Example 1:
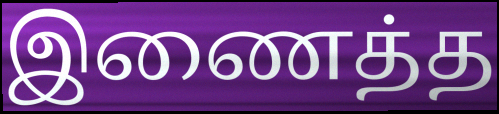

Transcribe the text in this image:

இணைத்த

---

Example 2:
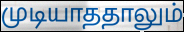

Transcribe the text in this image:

முடியாததாலும்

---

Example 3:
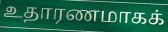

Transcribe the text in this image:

உதாரணமாகக்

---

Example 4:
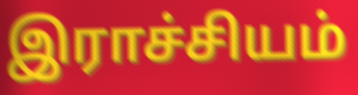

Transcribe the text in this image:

இராச்சியம்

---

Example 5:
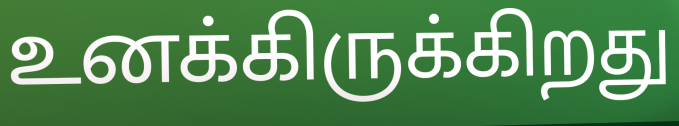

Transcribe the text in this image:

உனக்கிருக்கிறது